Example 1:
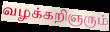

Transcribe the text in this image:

வழக்கறிஞரும்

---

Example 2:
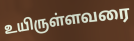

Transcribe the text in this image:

உயிருள்ளவரை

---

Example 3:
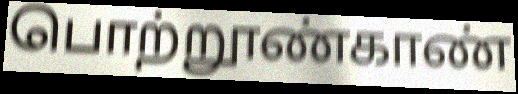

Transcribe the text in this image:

பொற்றூண்காண்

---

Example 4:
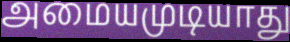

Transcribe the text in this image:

அமையமுடியாது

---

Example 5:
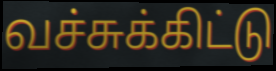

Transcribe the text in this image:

வச்சுக்கிட்டு